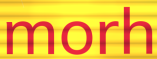
morh